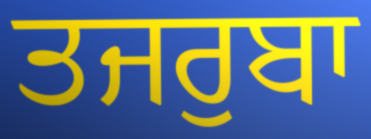
ਤਜਰੁਬਾ